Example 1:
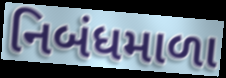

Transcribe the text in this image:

નિબંધમાળા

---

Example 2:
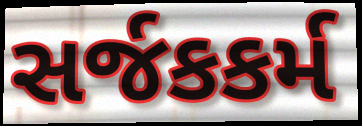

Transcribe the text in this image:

સર્જકકર્મ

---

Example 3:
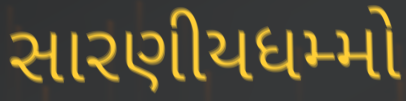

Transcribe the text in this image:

સારણીયધમ્મો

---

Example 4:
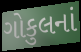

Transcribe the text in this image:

ગોકુલનાં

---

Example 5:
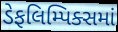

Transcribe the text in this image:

ડેફલિમ્પિક્સમાં